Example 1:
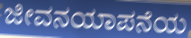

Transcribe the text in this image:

ಜೀವನಯಾಪನೆಯ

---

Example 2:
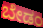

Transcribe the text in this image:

ಬೇಡಂ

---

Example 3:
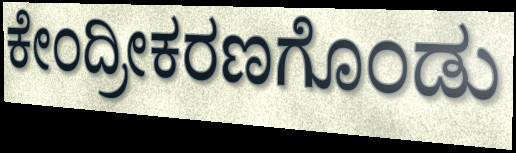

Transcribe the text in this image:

ಕೇಂದ್ರೀಕರಣಗೊಂಡು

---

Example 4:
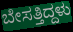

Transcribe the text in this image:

ಬೇಸತ್ತಿದ್ದಳು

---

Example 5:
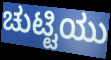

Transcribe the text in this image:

ಚುಟ್ಟಿಯು